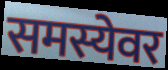
समस्येवर